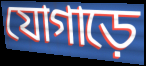
যোগাড়ে